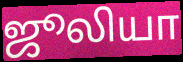
ஜூலியா